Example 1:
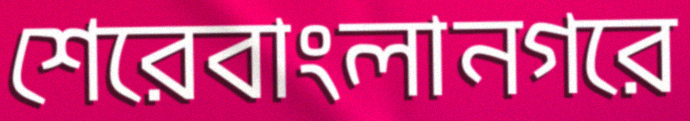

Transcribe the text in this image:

শেরেবাংলানগরে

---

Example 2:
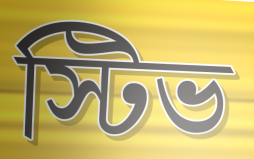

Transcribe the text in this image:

স্টিভ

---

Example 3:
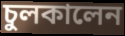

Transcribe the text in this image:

চুলকালেন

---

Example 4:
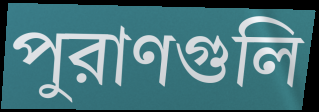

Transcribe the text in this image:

পুরাণগুলি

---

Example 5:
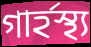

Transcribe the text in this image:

গার্হস্থ্য